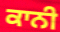
ਕਾਨੀ